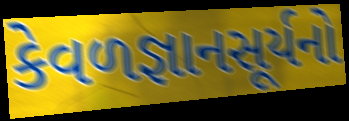
કેવળજ્ઞાનસૂર્યનો